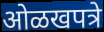
ओळखपत्रे